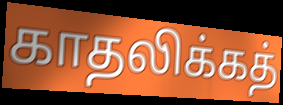
காதலிக்கத்